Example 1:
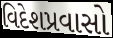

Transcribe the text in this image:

વિદેશપ્રવાસો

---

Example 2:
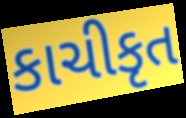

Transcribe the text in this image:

કાચીકૃત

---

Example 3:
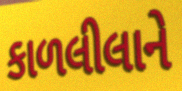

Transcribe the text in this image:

કાળલીલાને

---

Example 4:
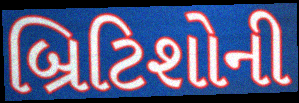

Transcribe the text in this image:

બ્રિટિશોની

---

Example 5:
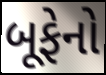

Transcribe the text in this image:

બૂફેનો